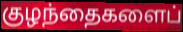
குழந்தைகளைப்